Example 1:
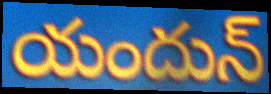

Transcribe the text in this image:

యందున్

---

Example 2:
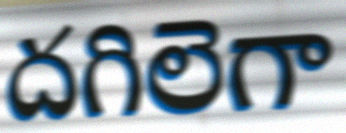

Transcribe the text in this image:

దగిలెగా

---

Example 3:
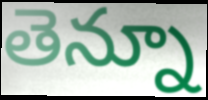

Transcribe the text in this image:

తెన్నూ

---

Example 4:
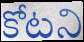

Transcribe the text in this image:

కోటని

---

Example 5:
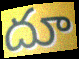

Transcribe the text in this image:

దూ